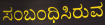
ಸಂಬಂಧಿಸಿರುವ